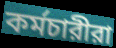
কর্মচারীরা